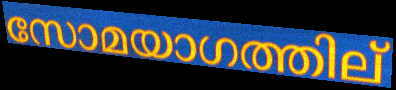
സോമയാഗത്തില്